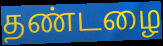
தண்டழை